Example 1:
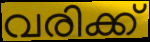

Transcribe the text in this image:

വരിക്ക്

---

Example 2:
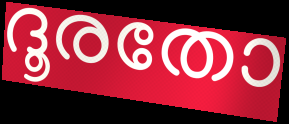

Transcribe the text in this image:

ദൂരതോ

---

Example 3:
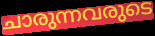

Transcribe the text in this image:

ചാരുന്നവരുടെ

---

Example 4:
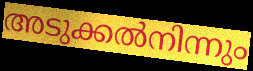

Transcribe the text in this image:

അടുക്കൽനിന്നും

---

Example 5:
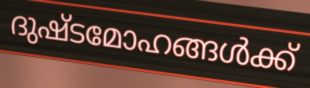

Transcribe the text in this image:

ദുഷ്ടമോഹങ്ങൾക്ക്